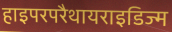
हाइपरपरैथायराइडिज्म